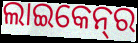
ଲାଇକେନ୍‌ର